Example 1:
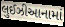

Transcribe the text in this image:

લુઈઝીઆનામાં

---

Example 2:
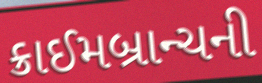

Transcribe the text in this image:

ક્રાઈમબ્રાન્ચની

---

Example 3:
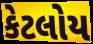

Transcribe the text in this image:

કેટલોય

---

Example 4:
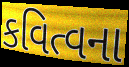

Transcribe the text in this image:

કવિત્વના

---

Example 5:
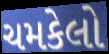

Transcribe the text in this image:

ચમકેલો